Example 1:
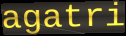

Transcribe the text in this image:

agatri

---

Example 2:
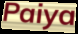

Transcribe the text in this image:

Paiya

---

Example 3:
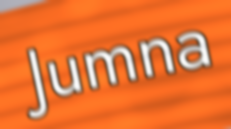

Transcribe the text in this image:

Jumna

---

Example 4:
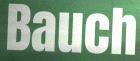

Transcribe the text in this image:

Bauch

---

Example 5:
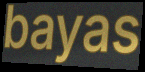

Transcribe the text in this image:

bayas